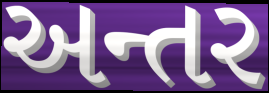
અન્તર